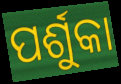
ପର୍ଶୁକା